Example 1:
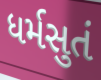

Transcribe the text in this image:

ધર્મસુતં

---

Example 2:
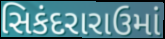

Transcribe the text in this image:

સિકંદરારાઉમાં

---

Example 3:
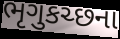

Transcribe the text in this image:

ભૃગુકચ્છના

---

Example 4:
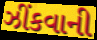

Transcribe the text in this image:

ઝીંકવાની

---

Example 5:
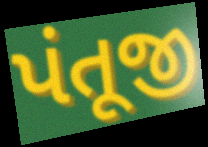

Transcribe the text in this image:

પંતૂજી